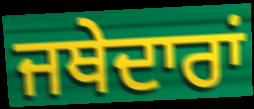
ਜਥੇਦਾਰਾਂ